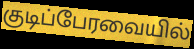
குடிப்பேரவையில்